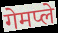
गेमप्ले